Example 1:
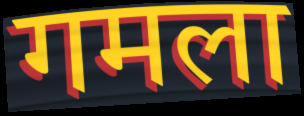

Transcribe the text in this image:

गमला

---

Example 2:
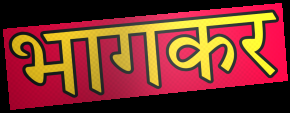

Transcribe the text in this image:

भागकर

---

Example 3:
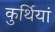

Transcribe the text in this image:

कुर्थियां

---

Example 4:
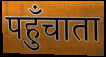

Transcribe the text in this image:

पहुँचाता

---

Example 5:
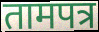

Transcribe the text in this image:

तामपत्र